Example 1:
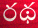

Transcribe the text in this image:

రథ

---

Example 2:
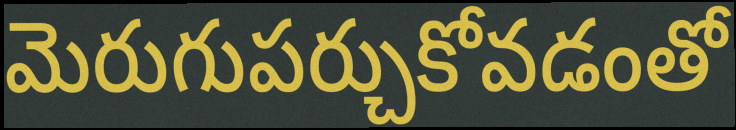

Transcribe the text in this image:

మెరుగుపర్చుకోవడంతో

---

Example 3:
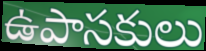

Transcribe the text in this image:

ఉపాసకులు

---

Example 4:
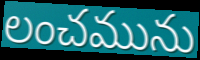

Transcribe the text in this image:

లంచమును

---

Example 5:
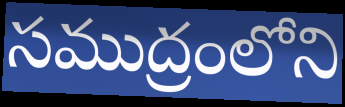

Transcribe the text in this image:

సముద్రంలోని